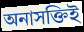
অনাসক্তিই